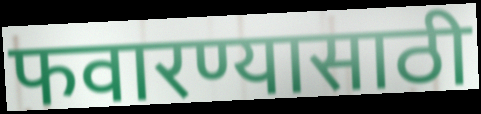
फवारण्यासाठी